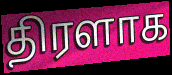
திரளாக